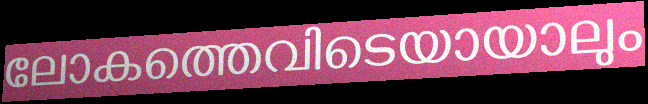
ലോകത്തെവിടെയായാലും